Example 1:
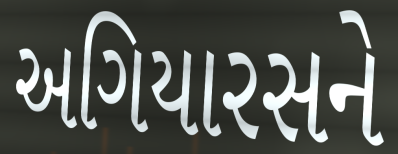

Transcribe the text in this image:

અગિયારસને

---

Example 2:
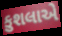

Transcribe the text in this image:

કુશલાએ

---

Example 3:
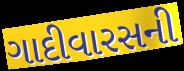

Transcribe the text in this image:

ગાદીવારસની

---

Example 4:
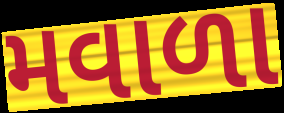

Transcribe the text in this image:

મવાળા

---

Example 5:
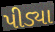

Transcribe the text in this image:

પીડ્યા